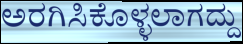
ಅರಗಿಸಿಕೊಳ್ಳಲಾಗದ್ದು